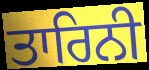
ਤਾਰਿਨੀ